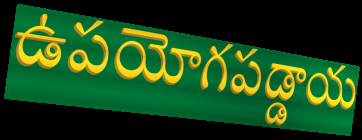
ఉపయోగపడ్డాయ